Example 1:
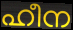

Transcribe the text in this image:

ഹീന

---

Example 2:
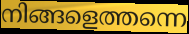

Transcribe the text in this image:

നിങ്ങളെത്തന്നെ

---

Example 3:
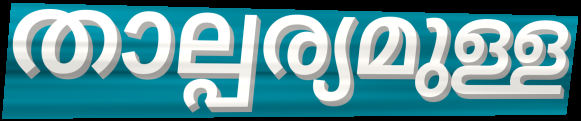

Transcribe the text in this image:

താല്പര്യമുള്ള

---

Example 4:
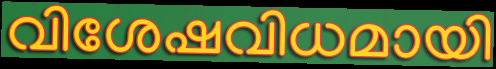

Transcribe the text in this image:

വിശേഷവിധമായി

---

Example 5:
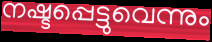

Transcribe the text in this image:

നഷ്ടപ്പെട്ടുവെന്നും